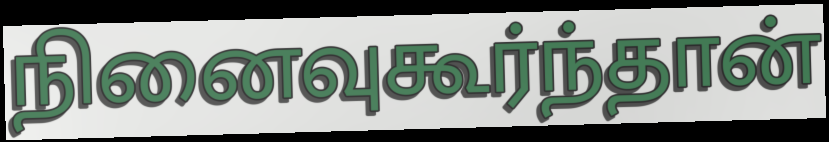
நினைவுகூர்ந்தான்